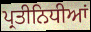
ਪ੍ਰਤੀਨਿਧੀਆਂ